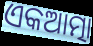
ଏକଆତ୍ମା